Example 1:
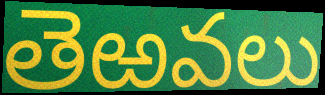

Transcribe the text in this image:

తెఱవలు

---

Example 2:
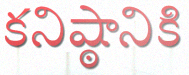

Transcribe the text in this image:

కనిష్ఠానికి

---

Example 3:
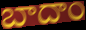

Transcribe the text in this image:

బాదాం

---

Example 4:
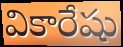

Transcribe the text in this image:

వికారేషు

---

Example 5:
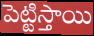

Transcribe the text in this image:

పెట్టిస్తాయి